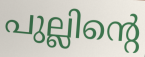
പുല്ലിന്റെ